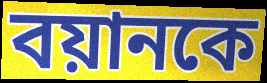
বয়ানকে